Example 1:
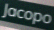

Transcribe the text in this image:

Jacopo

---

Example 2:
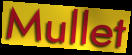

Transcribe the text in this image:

Mullet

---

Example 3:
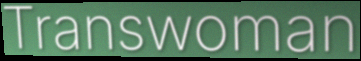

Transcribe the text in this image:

Transwoman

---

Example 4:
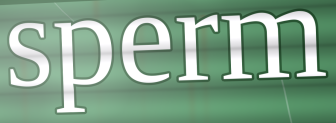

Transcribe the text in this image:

sperm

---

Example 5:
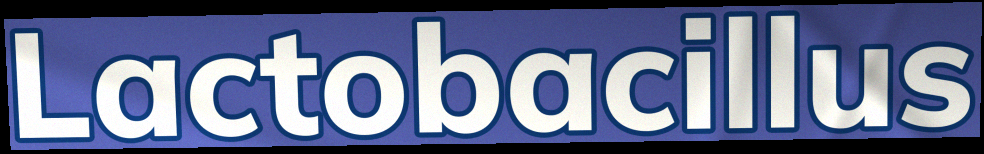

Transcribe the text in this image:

Lactobacillus